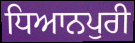
ਧਿਆਨਪੁਰੀ